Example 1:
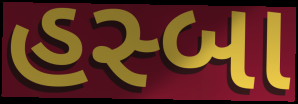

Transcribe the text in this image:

હસ્બા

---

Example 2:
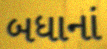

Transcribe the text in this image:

બધાનાં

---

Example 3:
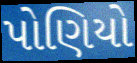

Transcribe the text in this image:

પોણિયો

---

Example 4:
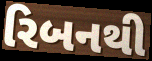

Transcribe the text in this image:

રિબનથી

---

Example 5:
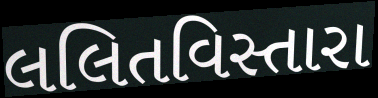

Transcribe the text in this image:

લલિતવિસ્તારા